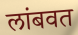
लांबवत